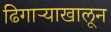
ढिगाऱ्याखालून